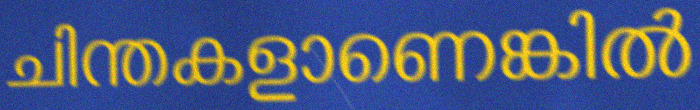
ചിന്തകളാണെങ്കിൽ